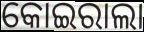
କୋଇରାଲା